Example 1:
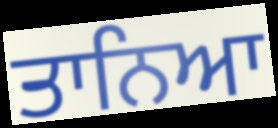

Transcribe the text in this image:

ਤਾਨਿਆ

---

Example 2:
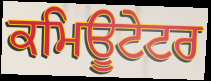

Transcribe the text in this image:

ਕਮਿਊਟੇਟਰ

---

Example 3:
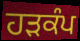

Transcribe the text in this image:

ਹੜਕੰਪ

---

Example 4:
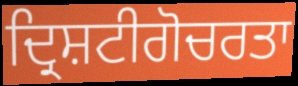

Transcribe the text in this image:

ਦ੍ਰਿਸ਼ਟੀਗੋਚਰਤਾ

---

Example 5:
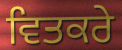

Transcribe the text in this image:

ਵਿਤਕਰੇ